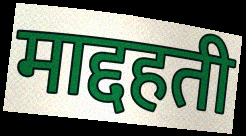
माद्दहती